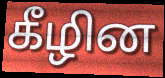
கீழின